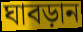
ঘাবড়ান